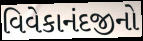
વિવેકાનંદજીનો